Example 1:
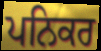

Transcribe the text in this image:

ਪਨਿਕਰ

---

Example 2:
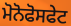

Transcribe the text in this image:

ਮੋਨੋਫੋਸਫੇਟ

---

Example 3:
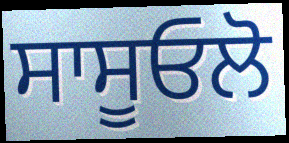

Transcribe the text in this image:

ਸਾਸੂਓਲੋ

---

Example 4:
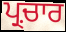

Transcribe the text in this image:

ਪ਼੍ਰਚਾਰ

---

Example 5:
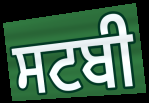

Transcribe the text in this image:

ਸਟਬੀ